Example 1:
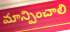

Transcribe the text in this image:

మాన్పించాలి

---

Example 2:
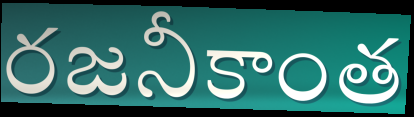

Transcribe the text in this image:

రజనీకాంత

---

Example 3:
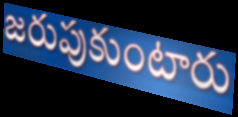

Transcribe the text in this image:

జరుపుకుంటారు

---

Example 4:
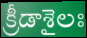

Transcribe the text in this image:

క్రీడాశైలః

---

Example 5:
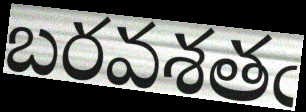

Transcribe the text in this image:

బరవశతఁ